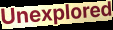
Unexplored